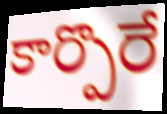
కార్పొరే